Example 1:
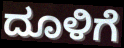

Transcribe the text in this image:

ದೂಳಿಗೆ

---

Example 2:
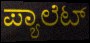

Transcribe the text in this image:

ಪ್ಯಾಲೆಟ್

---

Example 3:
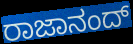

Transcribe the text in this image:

ರಾಜಾನಂದ್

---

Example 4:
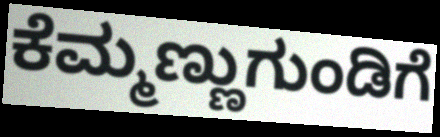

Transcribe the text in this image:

ಕೆಮ್ಮಣ್ಣುಗುಂಡಿಗೆ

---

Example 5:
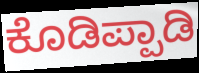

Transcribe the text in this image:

ಕೊಡಿಪ್ಪಾಡಿ